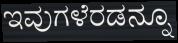
ಇವುಗಳೆರಡನ್ನೂ